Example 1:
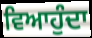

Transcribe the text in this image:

ਵਿਆਹੁੰਦਾ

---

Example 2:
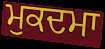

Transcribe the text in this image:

ਮੁਕਦਮਾ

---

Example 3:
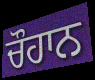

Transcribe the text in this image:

ਚੌਹਾਨ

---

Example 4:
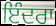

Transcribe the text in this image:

ਇੰਦਰਾ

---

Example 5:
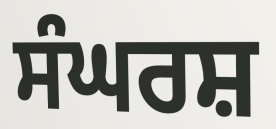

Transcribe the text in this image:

ਸੰਘਰਸ਼